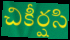
చికీర్షసి